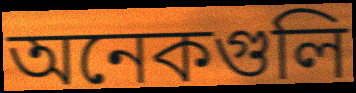
অনেকগুলি